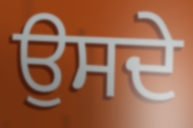
ਉਸਦੇ